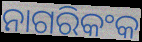
ନାଗରିକଂକ